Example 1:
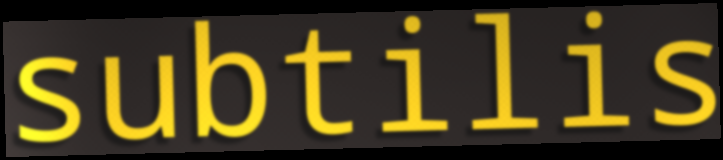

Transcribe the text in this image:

subtilis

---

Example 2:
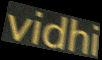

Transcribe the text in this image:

vidhi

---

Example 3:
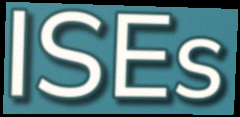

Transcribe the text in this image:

ISEs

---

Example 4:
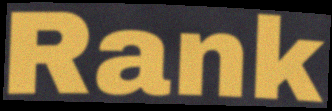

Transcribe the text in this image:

Rank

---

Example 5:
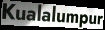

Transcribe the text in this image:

Kualalumpur